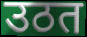
उठत